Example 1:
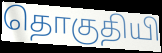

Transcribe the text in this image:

தொகுதியி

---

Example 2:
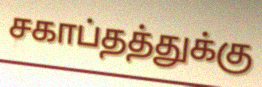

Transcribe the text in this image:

சகாப்தத்துக்கு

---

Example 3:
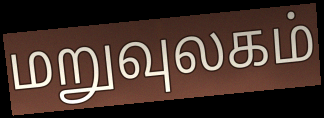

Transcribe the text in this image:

மறுவுலகம்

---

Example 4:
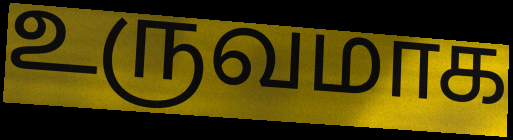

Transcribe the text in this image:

உருவமாக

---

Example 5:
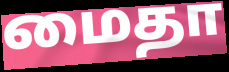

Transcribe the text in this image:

மைதா